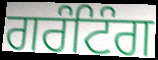
ਗਰੰਟਿੰਗ